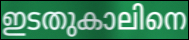
ഇടതുകാലിനെ